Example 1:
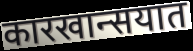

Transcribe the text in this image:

कारखान्सयात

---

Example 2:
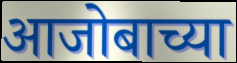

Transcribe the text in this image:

आजोबाच्या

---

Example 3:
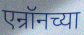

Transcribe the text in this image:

एन्रॉनच्या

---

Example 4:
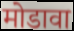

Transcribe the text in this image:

मोडावा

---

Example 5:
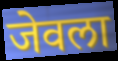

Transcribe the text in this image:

जेवला